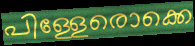
പിള്ളേരൊക്കെ